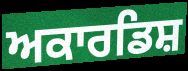
ਅਕਾਰਡਿਸ਼